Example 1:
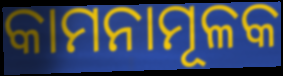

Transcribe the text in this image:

କାମନାମୂଳକ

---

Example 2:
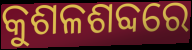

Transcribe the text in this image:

କୁଶଳଶବ୍ଦରେ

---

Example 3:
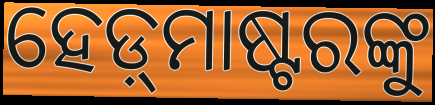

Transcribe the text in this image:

ହେଡ଼୍‌ମାଷ୍ଟରଙ୍କୁ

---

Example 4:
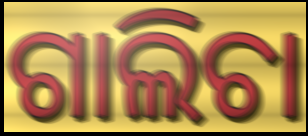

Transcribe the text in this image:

ଗାଲିଚା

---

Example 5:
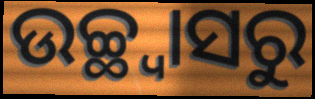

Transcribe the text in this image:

ଉଚ୍ଛ୍ୱାସରୁ